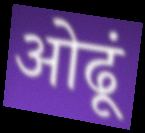
ओढूं